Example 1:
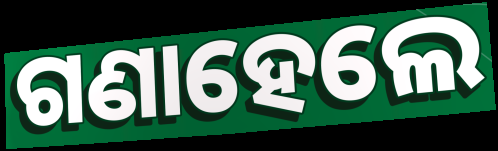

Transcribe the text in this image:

ଗଣାହେଲେ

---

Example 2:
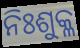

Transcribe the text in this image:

ନିଃଶୁକ୍ଳ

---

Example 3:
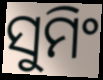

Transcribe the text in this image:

ସୁମିଂ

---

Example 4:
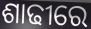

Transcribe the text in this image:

ଶାଢୀରେ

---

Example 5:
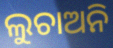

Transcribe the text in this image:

ଲୁଚାଅନି